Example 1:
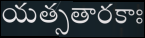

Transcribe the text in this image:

యత్సతారకాః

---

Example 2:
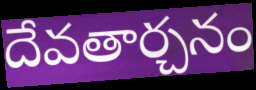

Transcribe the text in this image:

దేవతార్చనం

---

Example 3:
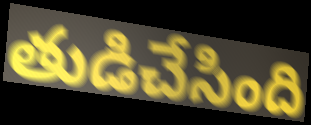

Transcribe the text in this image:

తుడిచేసింది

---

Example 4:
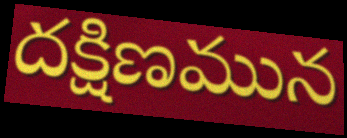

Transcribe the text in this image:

దక్షిణమున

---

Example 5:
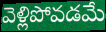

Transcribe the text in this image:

వెళ్లిపోవడమే